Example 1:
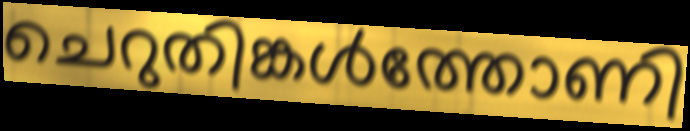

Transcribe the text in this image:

ചെറുതിങ്കൾത്തോണി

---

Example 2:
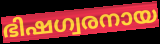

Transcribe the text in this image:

ഭിഷഗ്വരനായ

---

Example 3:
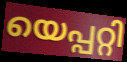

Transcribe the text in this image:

യെപ്പറ്റി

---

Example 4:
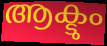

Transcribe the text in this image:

ആക്ടും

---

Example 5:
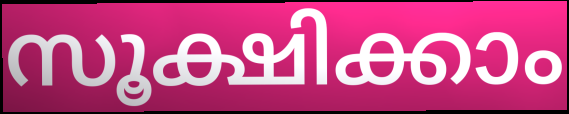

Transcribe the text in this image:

സൂക്ഷിക്കാം